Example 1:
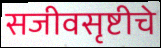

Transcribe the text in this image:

सजीवसृष्टीचे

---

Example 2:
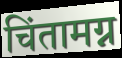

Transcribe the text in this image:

चिंतामग्न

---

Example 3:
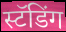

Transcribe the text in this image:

स्टॅडिंग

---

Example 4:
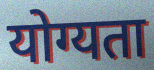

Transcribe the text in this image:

योग्यता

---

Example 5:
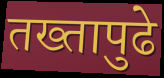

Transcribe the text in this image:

तख्तापुढे